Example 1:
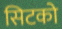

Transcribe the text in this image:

सिटको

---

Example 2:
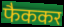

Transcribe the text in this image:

फैककर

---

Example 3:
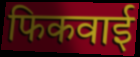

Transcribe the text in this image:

फिकवाई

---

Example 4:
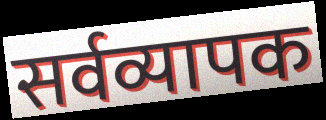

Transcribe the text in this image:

सर्वव्यापक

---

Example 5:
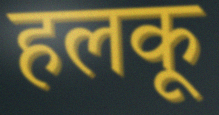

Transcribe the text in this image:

हलकू